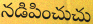
నడిపించుచు